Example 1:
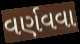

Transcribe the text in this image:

વર્ણવવા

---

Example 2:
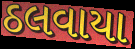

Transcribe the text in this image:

ઠલવાયા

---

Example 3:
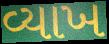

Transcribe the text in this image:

વ્યાખ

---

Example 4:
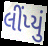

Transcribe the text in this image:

લીંપ્યું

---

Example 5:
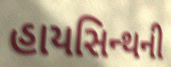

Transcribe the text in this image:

હાયસિન્થની